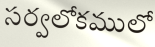
సర్వలోకములో